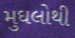
મુઘલોથી